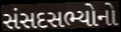
સંસદસભ્યોનો